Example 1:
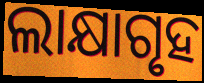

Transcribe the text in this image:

ଲାକ୍ଷାଗୃହ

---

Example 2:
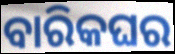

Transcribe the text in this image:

ବାରିକଘର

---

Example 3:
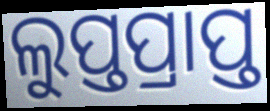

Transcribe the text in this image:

ଲୁପ୍ତପ୍ରାପ୍ତ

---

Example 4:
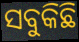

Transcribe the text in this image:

ସବୁକିଛି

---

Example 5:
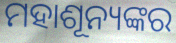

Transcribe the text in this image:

ମହାଶୂନ୍ୟଙ୍କର